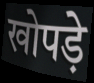
खोपड़े